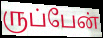
ருப்பேன்